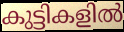
കുട്ടികളിൽ